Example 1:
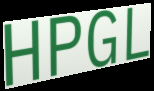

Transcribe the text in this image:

HPGL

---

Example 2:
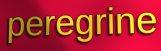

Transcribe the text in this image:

peregrine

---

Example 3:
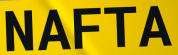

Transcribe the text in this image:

NAFTA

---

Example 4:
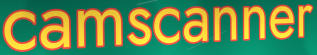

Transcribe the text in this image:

camscanner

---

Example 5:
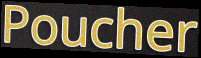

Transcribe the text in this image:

Poucher